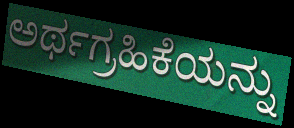
ಅರ್ಥಗ್ರಹಿಕೆಯನ್ನು